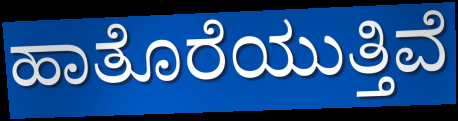
ಹಾತೊರೆಯುತ್ತಿವೆ